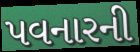
પવનારની